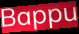
Bappu